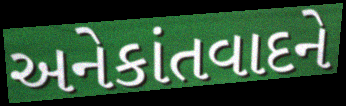
અનેકાંતવાદને